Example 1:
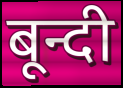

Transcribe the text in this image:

बून्दी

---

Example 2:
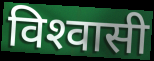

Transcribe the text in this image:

विश्‍वासी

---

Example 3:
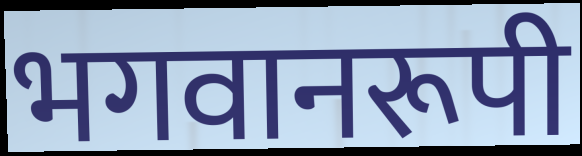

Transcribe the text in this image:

भगवानरूपी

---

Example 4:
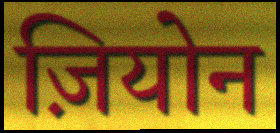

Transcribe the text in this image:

ज़ियोन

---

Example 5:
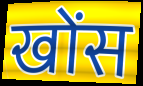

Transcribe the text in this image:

खोंस